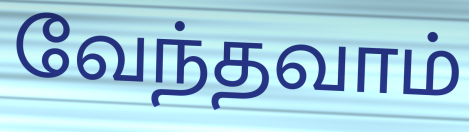
வேந்தவாம்